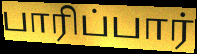
பாரிப்பார்